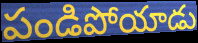
పండిపోయాడు